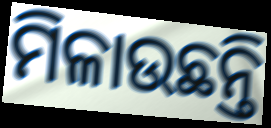
ମିଳାଉଛନ୍ତି